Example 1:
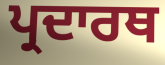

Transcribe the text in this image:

ਪ੍ਰਦਾਰਥ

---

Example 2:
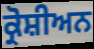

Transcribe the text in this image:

ਕ੍ਰੋਸ਼ੀਅਨ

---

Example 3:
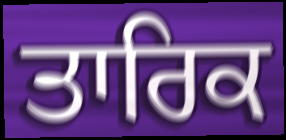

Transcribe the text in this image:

ਤਾਰਿਕ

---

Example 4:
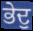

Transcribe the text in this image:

ਭੇਦੁ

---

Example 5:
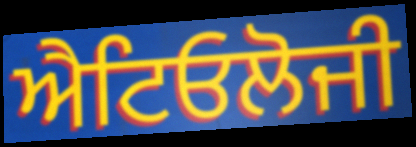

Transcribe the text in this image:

ਐਟਿਓਲੋਜੀ